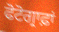
ਫੋਟੋਗ੍ਰਾਫ਼ਾਂ